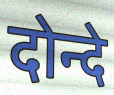
दोन्दे